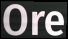
Ore